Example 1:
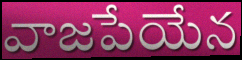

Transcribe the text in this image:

వాజపేయేన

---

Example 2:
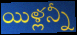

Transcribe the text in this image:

యిళ్లన్నీ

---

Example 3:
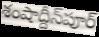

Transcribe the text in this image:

శంషాద్దీన్‌పూర్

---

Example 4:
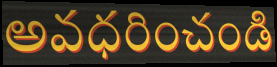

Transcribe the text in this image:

అవధరించండి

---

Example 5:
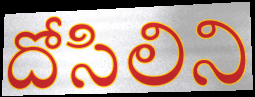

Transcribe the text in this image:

దోసిలిని